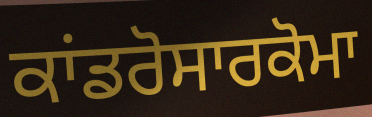
ਕਾਂਡਰੋਸਾਰਕੋਮਾ